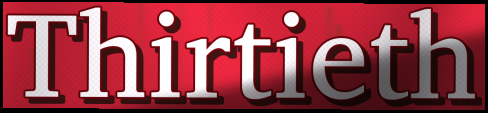
Thirtieth